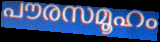
പൗരസമൂഹം